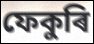
ফেকুৰি